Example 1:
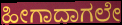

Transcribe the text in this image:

ಹೀಗಾದಾಗಲೇ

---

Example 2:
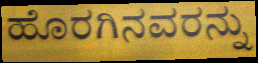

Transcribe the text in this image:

ಹೊರಗಿನವರನ್ನು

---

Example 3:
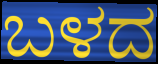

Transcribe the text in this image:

ಬಳದ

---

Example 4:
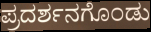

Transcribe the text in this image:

ಪ್ರದರ್ಶನಗೊಂಡು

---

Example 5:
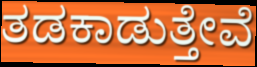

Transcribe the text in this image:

ತಡಕಾಡುತ್ತೇವೆ